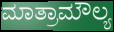
ಮಾತ್ರಾಮೌಲ್ಯ